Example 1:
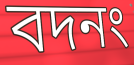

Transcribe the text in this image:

বদনং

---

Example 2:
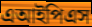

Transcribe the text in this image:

এআইপিএস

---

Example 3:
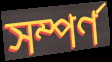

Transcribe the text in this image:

সম্পর্ণ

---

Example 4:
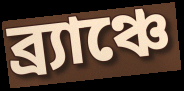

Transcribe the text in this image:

ব্র্যাঞ্চে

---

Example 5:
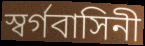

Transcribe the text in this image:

স্বর্গবাসিনী